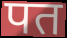
पत